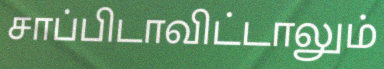
சாப்பிடாவிட்டாலும்